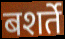
बशर्ते